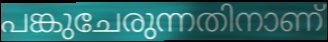
പങ്കുചേരുന്നതിനാണ്